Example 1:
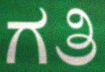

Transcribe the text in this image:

ಗತಿ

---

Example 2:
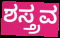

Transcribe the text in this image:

ಶಸ್ತ್ರವ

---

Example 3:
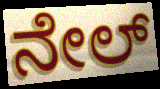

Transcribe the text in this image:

ನೇಲ್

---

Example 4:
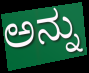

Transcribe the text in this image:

ಅನ್ನು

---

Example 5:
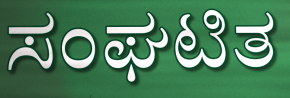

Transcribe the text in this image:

ಸಂಘಟಿತ